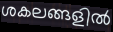
ശകലങ്ങളിൽ